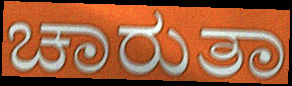
ಚಾರುತಾ